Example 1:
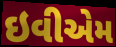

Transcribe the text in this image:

ઇવીએમ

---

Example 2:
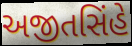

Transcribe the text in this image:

અજીતસિંહે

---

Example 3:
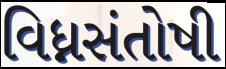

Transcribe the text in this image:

વિધ્નસંતોષી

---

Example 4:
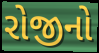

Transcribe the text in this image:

રોજીનો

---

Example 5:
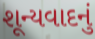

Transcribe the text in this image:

શૂન્યવાદનું